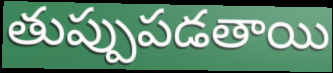
తుప్పుపడతాయి